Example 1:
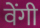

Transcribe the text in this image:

वेंगी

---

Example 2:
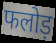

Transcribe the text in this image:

फलोड़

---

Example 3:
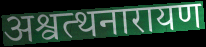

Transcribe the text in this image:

अश्वत्थनारायण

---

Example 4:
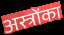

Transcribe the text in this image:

अस्त्रोंका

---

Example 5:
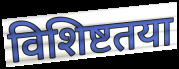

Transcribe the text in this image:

विशिष्टतया